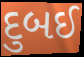
દુબઈ